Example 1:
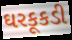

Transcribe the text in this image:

ઘરકૂકડી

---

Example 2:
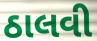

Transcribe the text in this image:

ઠાલવી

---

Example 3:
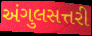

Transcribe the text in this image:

અંગુલસત્તરી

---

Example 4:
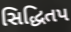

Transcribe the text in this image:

સિદ્ધિતપ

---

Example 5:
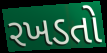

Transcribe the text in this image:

રખડતો